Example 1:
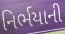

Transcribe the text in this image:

નિર્ભયાની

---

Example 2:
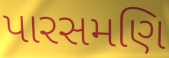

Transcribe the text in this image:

પારસમણિ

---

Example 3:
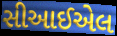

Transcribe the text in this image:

સીઆઈએલ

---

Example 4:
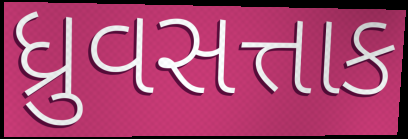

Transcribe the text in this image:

ધ્રુવસત્તાક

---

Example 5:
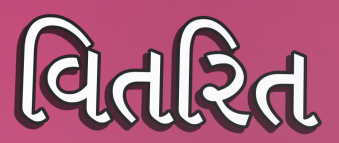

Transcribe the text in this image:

વિતરિત